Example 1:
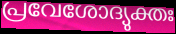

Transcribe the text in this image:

പ്രവേശോദ്യുക്തഃ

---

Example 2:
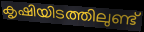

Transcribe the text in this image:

കൃഷിയിടത്തിലുണ്ട്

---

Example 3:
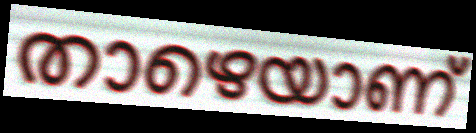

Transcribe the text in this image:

താഴെയാണ്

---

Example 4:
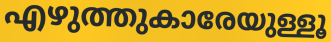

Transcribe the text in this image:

എഴുത്തുകാരേയുള്ളൂ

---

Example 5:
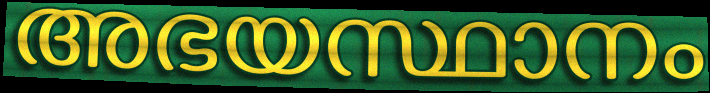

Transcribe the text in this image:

അഭയസ്ഥാനം